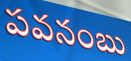
పవనంబు